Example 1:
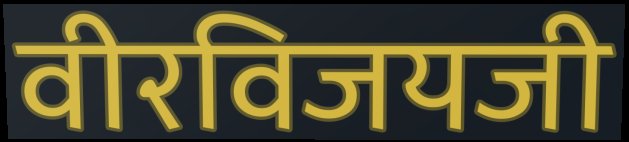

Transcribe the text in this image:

वीरविजयजी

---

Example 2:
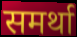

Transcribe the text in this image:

समर्था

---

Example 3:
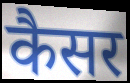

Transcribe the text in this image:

कैसर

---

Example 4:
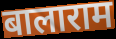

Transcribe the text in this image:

बालाराम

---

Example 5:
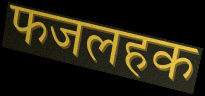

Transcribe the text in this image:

फजलहक